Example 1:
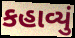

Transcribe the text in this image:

કહાવ્યું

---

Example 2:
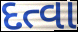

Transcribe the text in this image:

દત્વા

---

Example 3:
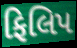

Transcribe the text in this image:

ફિલિપ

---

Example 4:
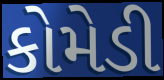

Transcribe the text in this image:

કોમેડી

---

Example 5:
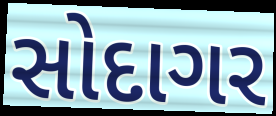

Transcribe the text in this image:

સોદાગર